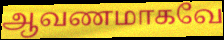
ஆவணமாகவே